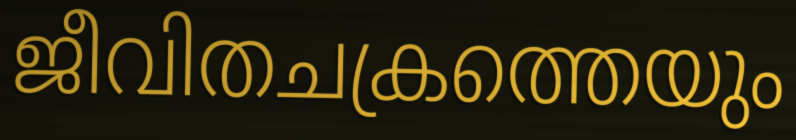
ജീവിതചക്രത്തെയും